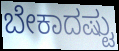
ಬೇಕಾದಷ್ಟು